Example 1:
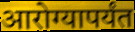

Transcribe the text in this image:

आरोग्यापर्यंत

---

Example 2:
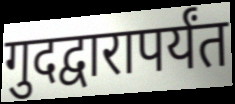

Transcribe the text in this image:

गुदद्वारापर्यंत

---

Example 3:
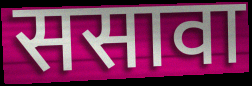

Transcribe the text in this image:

ससावा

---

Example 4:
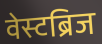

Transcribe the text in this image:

वेस्टब्रिज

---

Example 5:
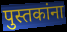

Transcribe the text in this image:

पुस्तकांना